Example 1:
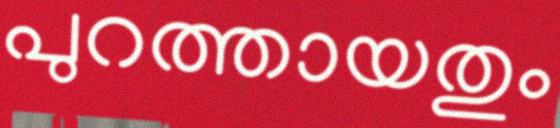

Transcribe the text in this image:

പുറത്തായതും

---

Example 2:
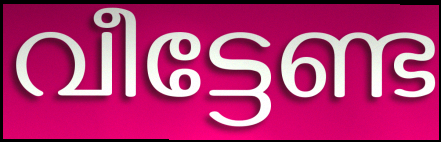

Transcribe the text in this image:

വീട്ടേണ്ട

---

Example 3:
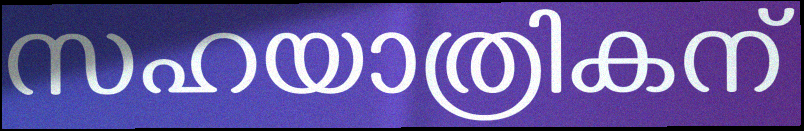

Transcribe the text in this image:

സഹയാത്രികന്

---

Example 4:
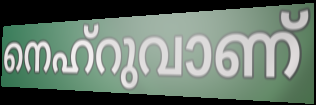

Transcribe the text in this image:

നെഹ്റുവാണ്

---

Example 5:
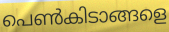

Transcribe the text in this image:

പെൺകിടാങ്ങളെ